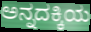
ಅನ್ನದಕ್ಕಿಯ